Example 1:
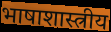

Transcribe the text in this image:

भाषाशास्त्रीय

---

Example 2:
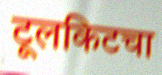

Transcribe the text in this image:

टूलकिटचा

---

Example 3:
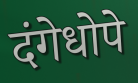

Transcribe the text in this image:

दंगेधोपे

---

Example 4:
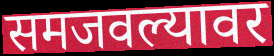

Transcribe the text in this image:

समजवल्यावर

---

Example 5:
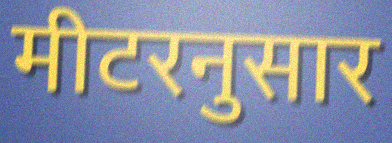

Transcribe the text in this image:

मीटरनुसार